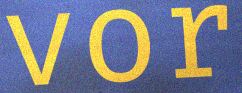
vor